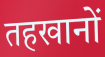
तहखानों